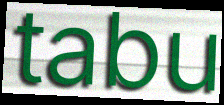
tabu